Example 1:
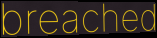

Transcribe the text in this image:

breached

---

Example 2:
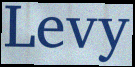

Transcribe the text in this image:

Levy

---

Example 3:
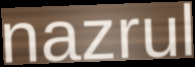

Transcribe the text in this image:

nazrul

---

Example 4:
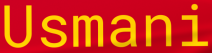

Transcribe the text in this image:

Usmani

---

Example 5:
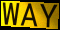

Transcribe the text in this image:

WAY